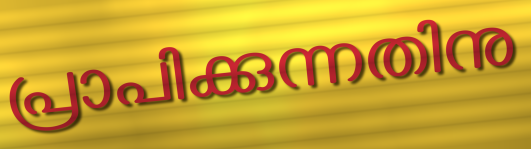
പ്രാപിക്കുന്നതിനു